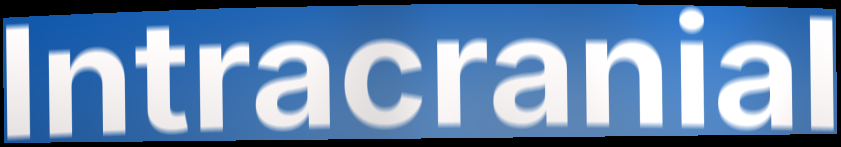
Intracranial